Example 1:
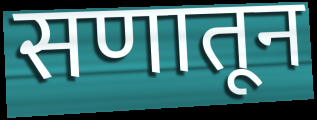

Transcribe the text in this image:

सणातून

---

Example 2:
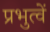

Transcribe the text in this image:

प्रभुत्वें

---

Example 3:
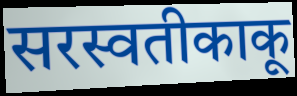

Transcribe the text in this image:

सरस्वतीकाकू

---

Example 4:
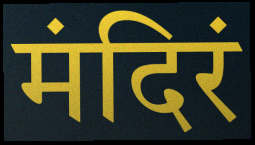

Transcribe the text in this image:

मंदिरं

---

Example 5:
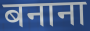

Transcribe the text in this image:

बनाना